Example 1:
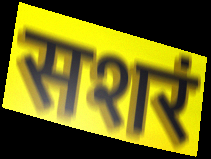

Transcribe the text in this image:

सशरं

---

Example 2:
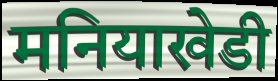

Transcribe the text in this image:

मनियाखेडी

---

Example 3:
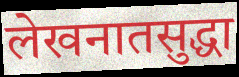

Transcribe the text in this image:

लेखनातसुद्धा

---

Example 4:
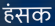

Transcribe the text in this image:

हंसक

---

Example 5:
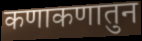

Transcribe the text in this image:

कणाकणातुन